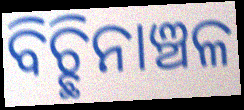
ବିଚ୍ଛିନାଞ୍ଚଳ